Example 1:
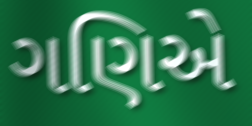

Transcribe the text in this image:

ગણિએ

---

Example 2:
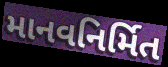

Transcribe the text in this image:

માનવનિર્મિત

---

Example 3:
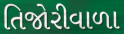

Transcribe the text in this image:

તિજોરીવાળા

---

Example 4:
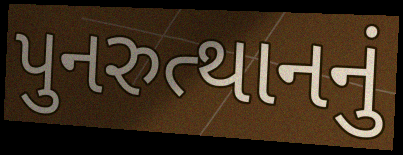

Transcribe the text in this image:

પુનરુત્થાનનું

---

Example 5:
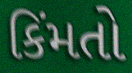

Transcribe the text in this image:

કિંમતો